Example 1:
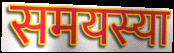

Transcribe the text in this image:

समयस्या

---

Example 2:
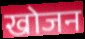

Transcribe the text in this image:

खोजन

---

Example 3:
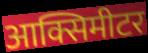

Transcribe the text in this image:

आक्सिमीटर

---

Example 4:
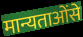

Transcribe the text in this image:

मान्यताओंसे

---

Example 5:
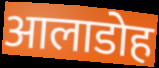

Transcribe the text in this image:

आलाडोह